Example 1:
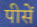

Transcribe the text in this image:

पीसें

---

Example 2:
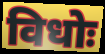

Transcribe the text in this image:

विधोः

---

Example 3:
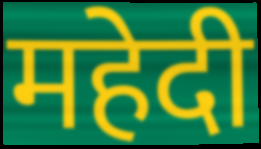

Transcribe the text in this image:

महेदी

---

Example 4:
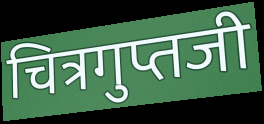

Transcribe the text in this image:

चित्रगुप्तजी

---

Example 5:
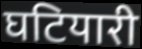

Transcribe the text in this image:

घटियारी